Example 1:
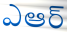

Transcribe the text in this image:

ఎఆర్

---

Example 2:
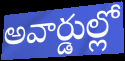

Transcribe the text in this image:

అవార్డుల్లో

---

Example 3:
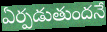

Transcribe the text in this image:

ఏర్పడుతుందనే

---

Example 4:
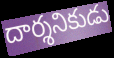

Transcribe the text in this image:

దార్శనికుడు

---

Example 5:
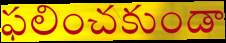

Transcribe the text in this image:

ఫలించకుండా